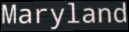
Maryland